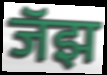
जॅझ